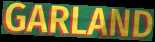
GARLAND